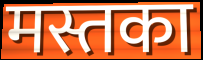
मस्तका